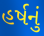
હર્ષનું